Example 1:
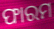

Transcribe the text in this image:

ଫାରମ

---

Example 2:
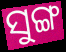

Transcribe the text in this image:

ସୁଙ୍ଗ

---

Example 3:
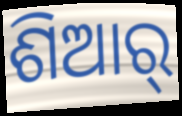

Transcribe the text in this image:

ଶିଆର୍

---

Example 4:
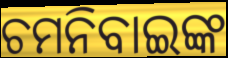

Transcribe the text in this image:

ଚମନିବାଇଙ୍କ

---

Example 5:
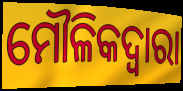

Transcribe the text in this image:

ମୌଳିକଦ୍ଵାରା